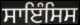
ਸਾਇੰਸਿਸ